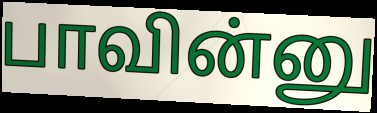
பாவின்னு